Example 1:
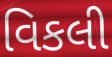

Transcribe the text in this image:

વિકલી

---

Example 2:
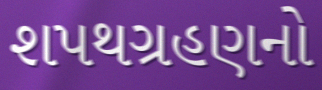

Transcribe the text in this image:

શપથગ્રહણનો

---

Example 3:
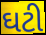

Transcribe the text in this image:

ઘટી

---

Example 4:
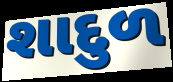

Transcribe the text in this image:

શાદુળ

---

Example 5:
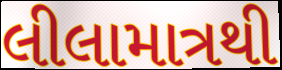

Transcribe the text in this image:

લીલામાત્રથી